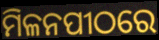
ମିଳନପୀଠରେ